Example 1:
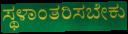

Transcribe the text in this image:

ಸ್ಥಳಾಂತರಿಸಬೇಕು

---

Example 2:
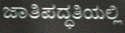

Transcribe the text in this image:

ಜಾತಿಪದ್ಧತಿಯಲ್ಲಿ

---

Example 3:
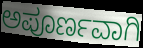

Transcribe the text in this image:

ಅಪೂರ್ಣವಾಗಿ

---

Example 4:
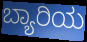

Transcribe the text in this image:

ಬ್ಯಾರಿಯ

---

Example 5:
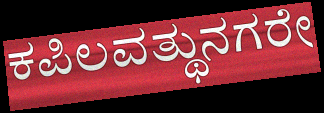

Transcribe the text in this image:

ಕಪಿಲವತ್ಥುನಗರೇ